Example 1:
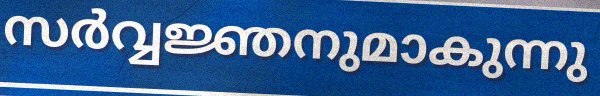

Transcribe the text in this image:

സർവ്വജ്ഞനുമാകുന്നു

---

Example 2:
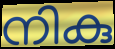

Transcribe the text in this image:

നികു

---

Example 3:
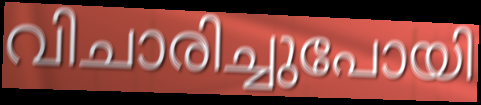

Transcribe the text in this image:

വിചാരിച്ചുപോയി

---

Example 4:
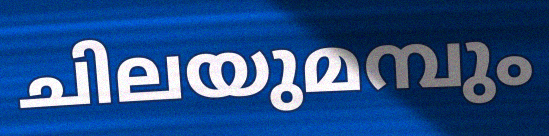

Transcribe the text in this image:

ചിലയുമമ്പും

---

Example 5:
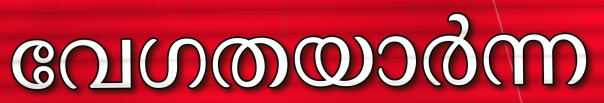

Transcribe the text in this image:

വേഗതയാർന്ന